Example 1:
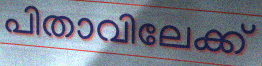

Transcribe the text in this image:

പിതാവിലേക്ക്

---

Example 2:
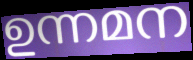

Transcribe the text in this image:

ഉന്നമന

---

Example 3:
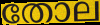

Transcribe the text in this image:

തോല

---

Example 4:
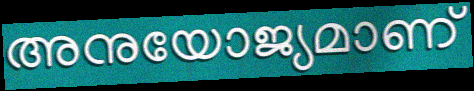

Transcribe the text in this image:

അനുയോജ്യമാണ്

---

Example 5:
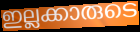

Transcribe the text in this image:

ഇല്ലക്കാരുടെ